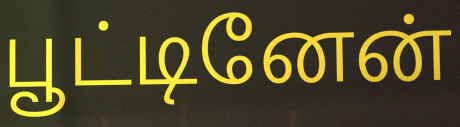
பூட்டினேன்